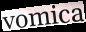
vomica